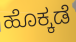
ಹೊಕ್ಕಡೆ